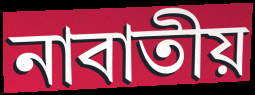
নাবাতীয়